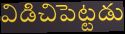
విడిచిపెట్టడు